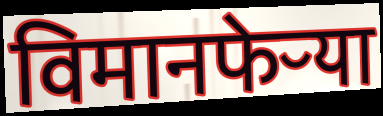
विमानफेऱ्या